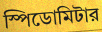
স্পিডোমিটার